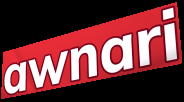
awnari